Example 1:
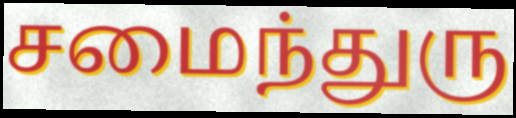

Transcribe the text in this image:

சமைந்துரு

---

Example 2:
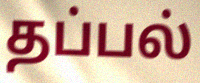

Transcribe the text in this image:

தப்பல்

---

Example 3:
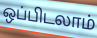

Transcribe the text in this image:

ஒப்பிடலாம்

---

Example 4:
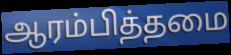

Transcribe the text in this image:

ஆரம்பித்தமை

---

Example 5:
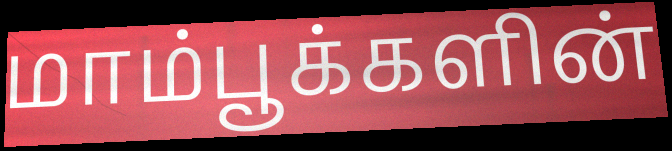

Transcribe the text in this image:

மாம்பூக்களின்